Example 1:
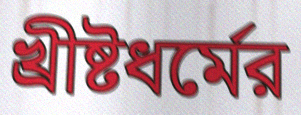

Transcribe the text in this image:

খ্রীষ্টধর্মের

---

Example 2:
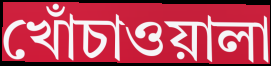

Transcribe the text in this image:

খোঁচাওয়ালা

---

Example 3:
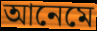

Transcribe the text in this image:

আনেমে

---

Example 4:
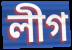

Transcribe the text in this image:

লীগ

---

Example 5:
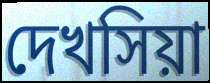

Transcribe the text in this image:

দেখসিয়া